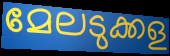
മേലടുക്കള